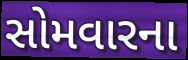
સોમવારના